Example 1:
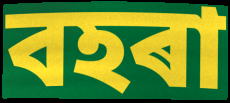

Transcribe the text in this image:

বহৰা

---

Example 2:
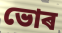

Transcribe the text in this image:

ভোৰ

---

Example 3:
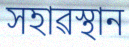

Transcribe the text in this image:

সহাৱস্থান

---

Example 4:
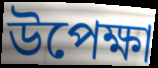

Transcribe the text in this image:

উপেক্ষা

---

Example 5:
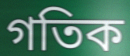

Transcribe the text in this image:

গতিক